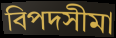
বিপদসীমা